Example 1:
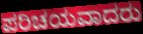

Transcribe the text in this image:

ಪರಿಚಯವಾದರು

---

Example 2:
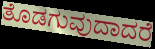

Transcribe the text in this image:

ತೊಡಗುವುದಾದರೆ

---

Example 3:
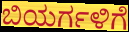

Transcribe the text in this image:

ಬಿಯರ್ಗಳಿಗೆ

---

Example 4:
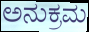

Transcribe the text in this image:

ಅನುಕ್ರಮ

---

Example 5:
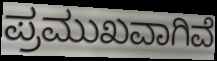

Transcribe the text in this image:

ಪ್ರಮುಖವಾಗಿವೆ